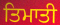
ਤਿਮਾਤੀ